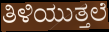
ತಿಳಿಯುತ್ತಲೆ